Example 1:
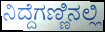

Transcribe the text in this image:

ನಿದ್ದೆಗಣ್ಣಿನಲ್ಲಿ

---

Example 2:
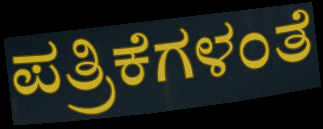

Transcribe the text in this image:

ಪತ್ರಿಕೆಗಳಂತೆ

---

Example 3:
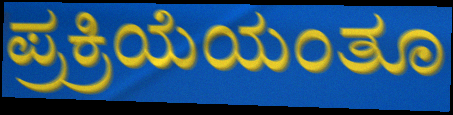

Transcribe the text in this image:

ಪ್ರಕ್ರಿಯೆಯಂತೂ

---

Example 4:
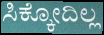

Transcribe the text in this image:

ಸಿಕ್ಕೋದಿಲ್ಲ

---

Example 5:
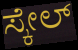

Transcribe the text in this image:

ಸ್ಕೇಲ್